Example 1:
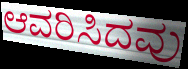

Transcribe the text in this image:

ಆವರಿಸಿದವು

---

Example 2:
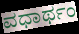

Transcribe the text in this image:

ವಧಾರ್ಥಂ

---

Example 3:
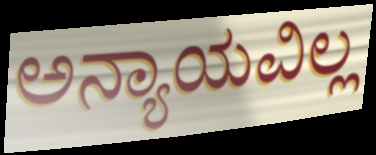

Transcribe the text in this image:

ಅನ್ಯಾಯವಿಲ್ಲ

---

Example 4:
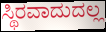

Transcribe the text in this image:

ಸ್ಥಿರವಾದುದಲ್ಲ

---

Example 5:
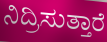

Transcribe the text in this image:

ನಿದ್ರಿಸುತ್ತಾರೆ